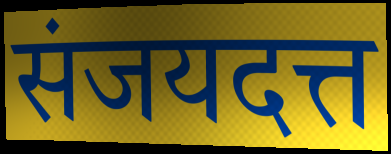
संजयदत्त